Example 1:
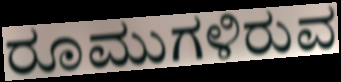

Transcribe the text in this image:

ರೂಮುಗಳಿರುವ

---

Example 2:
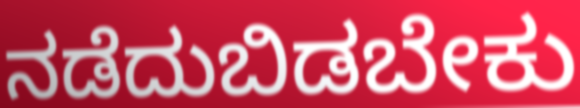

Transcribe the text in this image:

ನಡೆದುಬಿಡಬೇಕು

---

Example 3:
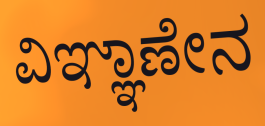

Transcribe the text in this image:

ವಿಞ್ಞಾಣೇನ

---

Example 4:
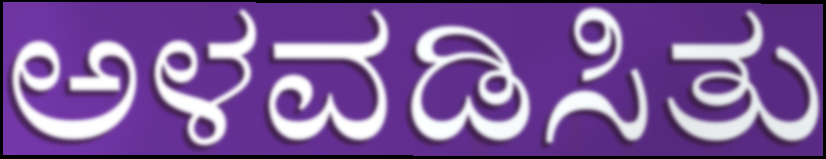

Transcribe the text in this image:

ಅಳವಡಿಸಿತು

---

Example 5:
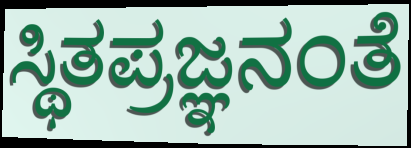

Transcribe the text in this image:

ಸ್ಥಿತಪ್ರಜ್ಞನಂತೆ